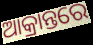
ଆକ୍ରାନ୍ତରେ